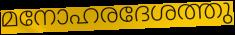
മനോഹരദേശത്തു